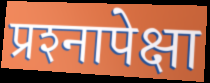
प्रश्नापेक्षा